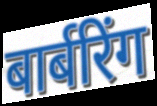
बार्बरिंग